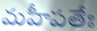
మహీపతేః